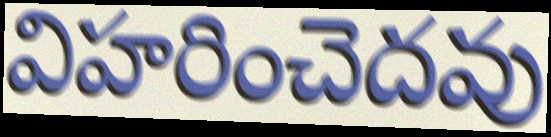
విహరించెదవు